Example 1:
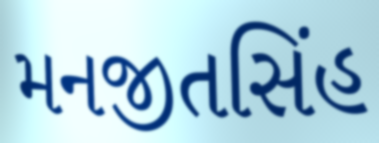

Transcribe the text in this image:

મનજીતસિંહ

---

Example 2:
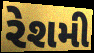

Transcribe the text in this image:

રેશમી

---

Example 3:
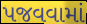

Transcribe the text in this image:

પજવવામાં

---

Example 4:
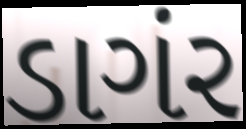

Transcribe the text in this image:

ડાગંર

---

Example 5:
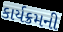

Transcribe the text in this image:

કાર્યક્રમની